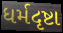
ધર્મદૃષ્ટા